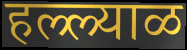
हल्ल्याळ